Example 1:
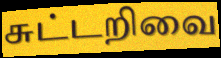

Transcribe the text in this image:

சுட்டறிவை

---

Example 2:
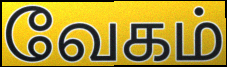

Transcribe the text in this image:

வேகம்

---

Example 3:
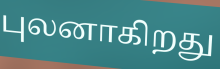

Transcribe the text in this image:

புலனாகிறது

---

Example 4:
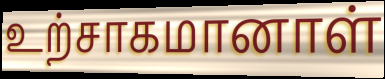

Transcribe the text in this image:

உற்சாகமானாள்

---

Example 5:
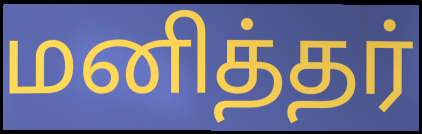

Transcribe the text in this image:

மனித்தர்